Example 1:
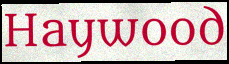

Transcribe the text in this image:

Haywood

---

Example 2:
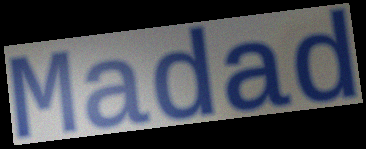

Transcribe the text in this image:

Madad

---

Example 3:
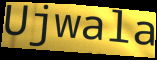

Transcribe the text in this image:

Ujwala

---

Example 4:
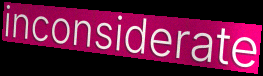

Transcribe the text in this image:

inconsiderate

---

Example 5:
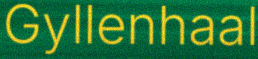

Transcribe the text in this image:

Gyllenhaal